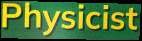
Physicist